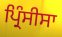
ਪ੍ਰਿੰਸੀਸਾ